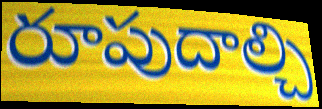
రూపుదాల్చి